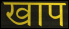
खाप